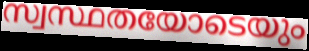
സ്വസ്ഥതയോടെയും